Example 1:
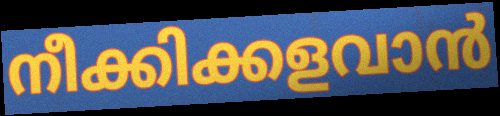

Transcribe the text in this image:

നീക്കിക്കളവാൻ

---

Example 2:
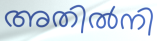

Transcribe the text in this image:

അതിൽനി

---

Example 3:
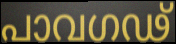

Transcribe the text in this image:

പാവഗഢ്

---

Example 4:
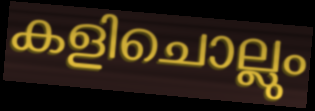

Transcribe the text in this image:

കളിചൊല്ലും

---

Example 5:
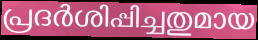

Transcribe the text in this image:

പ്രദർശിപ്പിച്ചതുമായ